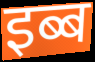
इब्ब